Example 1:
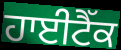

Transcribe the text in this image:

ਹਾਈਟੈੱਕ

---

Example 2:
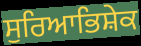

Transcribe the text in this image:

ਸੁਰਿਆਭਿਸ਼ੇਕ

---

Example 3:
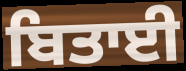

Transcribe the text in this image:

ਬਿਤਾਈ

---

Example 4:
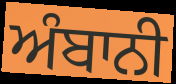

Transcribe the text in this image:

ਅੰਬਾਨੀ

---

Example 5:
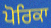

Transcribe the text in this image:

ਪੋਰਿਕਾ